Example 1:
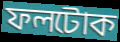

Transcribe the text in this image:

ফলটোক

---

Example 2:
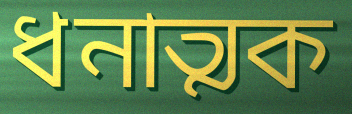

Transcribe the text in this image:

ধনাত্মক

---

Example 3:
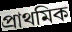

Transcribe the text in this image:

প্ৰাথমিক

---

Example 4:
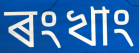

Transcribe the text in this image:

ৰংখাং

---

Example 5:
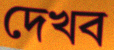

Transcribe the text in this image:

দেখব